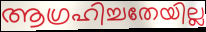
ആഗ്രഹിച്ചതേയില്ല